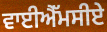
ਵਾਈਐੱਮਸੀਏ